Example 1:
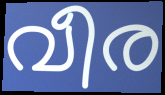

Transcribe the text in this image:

വീര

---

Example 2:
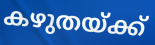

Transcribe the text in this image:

കഴുതയ്ക്ക്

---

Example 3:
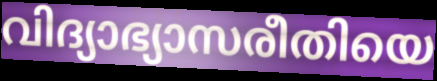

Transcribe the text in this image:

വിദ്യാഭ്യാസരീതിയെ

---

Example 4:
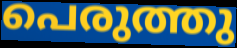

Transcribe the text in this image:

പെരുത്തു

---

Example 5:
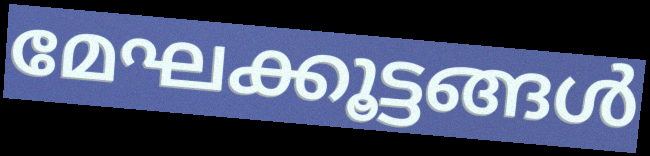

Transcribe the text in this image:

മേഘക്കൂട്ടങ്ങൾ